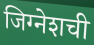
जिग्नेशची